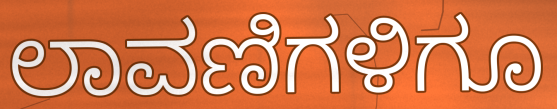
ಲಾವಣಿಗಳಿಗೂ